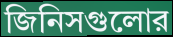
জিনিসগুলোর